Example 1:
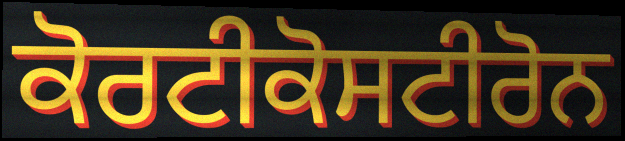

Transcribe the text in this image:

ਕੋਰਟੀਕੋਸਟੀਰੋਨ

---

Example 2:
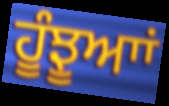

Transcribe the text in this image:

ਹੂੰਝੂਆਾਂ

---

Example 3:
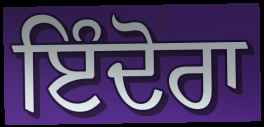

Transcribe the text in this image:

ਇੰਦੋਰਾ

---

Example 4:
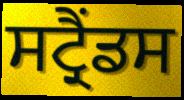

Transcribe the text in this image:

ਸਟ੍ਰੈਂਡਸ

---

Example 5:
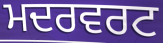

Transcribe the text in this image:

ਮਦਰਵਰਟ